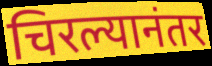
चिरल्यानंतर